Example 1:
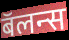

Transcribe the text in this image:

बॅलन्स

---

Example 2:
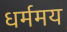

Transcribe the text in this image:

धर्ममय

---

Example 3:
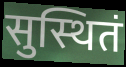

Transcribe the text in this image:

सुस्थितं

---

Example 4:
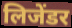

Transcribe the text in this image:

लिजेंडर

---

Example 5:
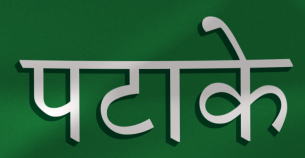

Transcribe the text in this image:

पटाके